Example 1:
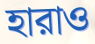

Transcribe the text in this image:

হারাও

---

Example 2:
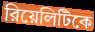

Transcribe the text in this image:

রিয়েলিটিকে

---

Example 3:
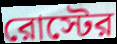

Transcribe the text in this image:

রোস্টের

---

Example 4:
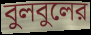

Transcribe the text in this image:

বুলবুলের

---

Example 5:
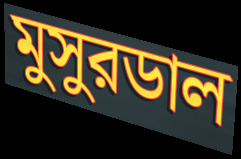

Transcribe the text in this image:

মুসুরডাল